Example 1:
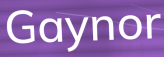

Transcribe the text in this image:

Gaynor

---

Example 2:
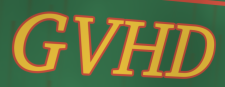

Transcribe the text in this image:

GVHD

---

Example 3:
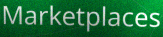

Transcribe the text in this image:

Marketplaces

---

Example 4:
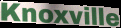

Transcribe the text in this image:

Knoxville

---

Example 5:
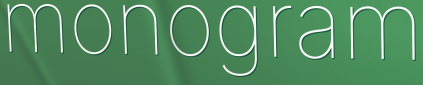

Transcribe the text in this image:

monogram